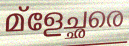
മ്ളേച്ഛരെ